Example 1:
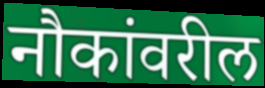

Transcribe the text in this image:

नौकांवरील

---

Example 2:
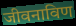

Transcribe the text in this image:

जीवनाविण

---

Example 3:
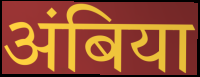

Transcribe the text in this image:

अंबिया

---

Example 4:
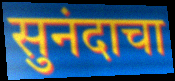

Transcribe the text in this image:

सुनंदाचा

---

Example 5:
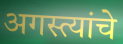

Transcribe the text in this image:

अगस्त्यांचे